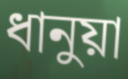
ধানুয়া